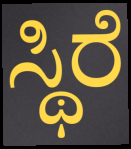
ಸ್ಥಿರೆ